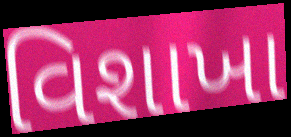
વિશાખા